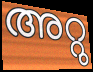
അറ്റു